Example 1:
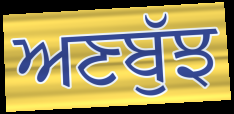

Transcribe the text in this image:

ਅਣਬੁੱਝ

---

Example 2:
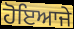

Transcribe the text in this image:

ਹੋਇਆਜੇ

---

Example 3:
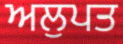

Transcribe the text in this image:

ਅਲੁਪਤ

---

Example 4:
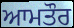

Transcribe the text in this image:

ਆਮਤੌਰ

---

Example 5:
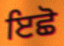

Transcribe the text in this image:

ਇਛੋ